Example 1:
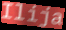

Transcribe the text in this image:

Ilija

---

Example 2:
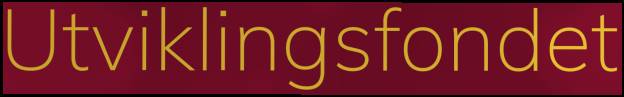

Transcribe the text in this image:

Utviklingsfondet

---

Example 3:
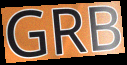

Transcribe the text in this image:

GRB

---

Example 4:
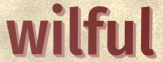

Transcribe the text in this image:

wilful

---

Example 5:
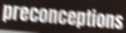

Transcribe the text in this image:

preconceptions